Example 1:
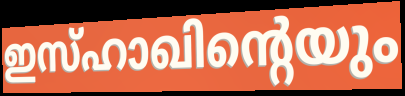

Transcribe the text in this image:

ഇസ്ഹാഖിന്റെയും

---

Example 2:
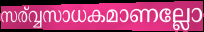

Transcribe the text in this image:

സര്വ്വസാധകമാണല്ലോ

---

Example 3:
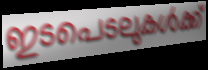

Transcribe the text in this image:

ഇടപെടലുകൾക്ക്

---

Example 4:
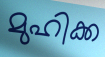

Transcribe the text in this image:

മുഹിക്ക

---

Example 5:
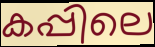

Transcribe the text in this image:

കപ്പിലെ